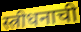
स्त्रीधनाची